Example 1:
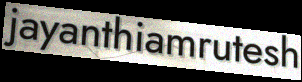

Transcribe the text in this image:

jayanthiamrutesh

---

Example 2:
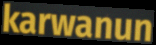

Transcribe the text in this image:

karwanun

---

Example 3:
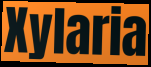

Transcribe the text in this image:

Xylaria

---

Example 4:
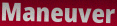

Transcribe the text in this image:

Maneuver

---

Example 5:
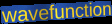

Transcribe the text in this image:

wavefunction